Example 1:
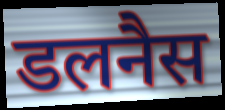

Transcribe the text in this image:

डलनैस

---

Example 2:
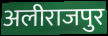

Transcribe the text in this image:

अलीराजपुर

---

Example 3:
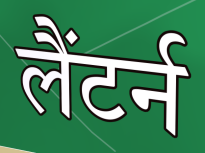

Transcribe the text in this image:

लैंटर्न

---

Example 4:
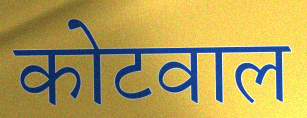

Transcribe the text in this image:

कोटवाल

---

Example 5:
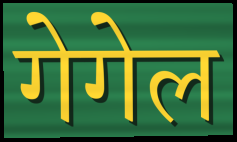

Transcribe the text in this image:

गेगेल